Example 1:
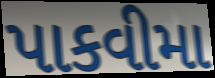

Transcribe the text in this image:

પાકવીમા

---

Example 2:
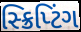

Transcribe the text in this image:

સ્ક્રિપ્ટિંગ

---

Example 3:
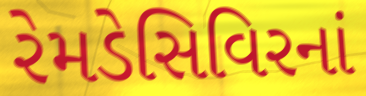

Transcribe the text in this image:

રેમડેસિવિરનાં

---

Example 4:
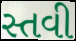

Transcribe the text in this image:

સ્તવી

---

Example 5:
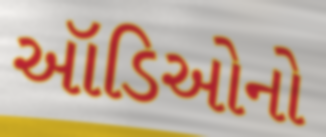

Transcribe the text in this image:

ઑડિઓનો